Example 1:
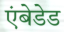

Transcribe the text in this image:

एंबेडेड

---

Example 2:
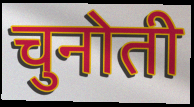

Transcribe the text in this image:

चुनोती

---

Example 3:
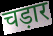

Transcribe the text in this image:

चड़ार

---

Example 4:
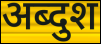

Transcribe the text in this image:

अब्दुश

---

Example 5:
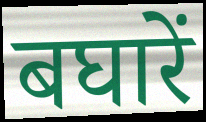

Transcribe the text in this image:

बघारें